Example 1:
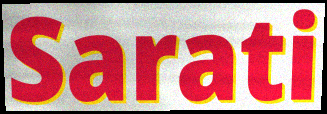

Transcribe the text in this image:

Sarati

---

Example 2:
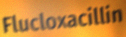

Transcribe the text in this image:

Flucloxacillin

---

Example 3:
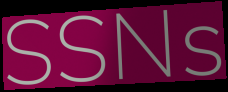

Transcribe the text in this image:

SSNs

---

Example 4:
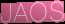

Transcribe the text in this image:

JAOS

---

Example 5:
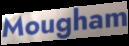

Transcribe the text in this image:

Mougham